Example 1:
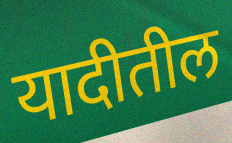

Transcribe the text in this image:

यादीतील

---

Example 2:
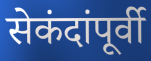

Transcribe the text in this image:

सेकंदांपूर्वी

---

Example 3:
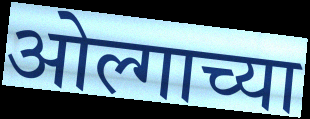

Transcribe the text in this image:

ओल्गाच्या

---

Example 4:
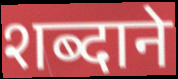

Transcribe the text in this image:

शब्दाने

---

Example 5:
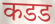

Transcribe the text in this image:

कडड